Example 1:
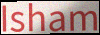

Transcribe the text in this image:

Isham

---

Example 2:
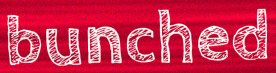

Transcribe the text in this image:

bunched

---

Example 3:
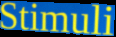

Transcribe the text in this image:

Stimuli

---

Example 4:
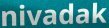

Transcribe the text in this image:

nivadak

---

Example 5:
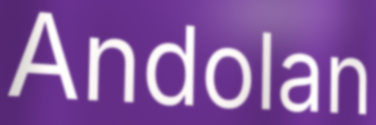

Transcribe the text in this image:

Andolan